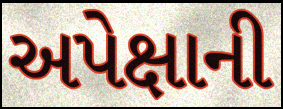
અપેક્ષાની